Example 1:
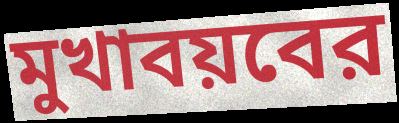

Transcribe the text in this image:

মুখাবয়বের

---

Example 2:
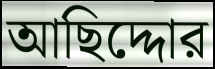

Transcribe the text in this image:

আছিদ্দোর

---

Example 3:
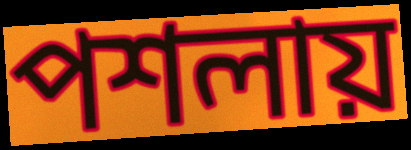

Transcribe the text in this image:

পশলায়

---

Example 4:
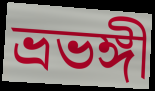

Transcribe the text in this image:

ভ্রভঙ্গী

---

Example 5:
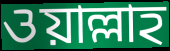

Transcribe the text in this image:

ওয়াল্লাহ